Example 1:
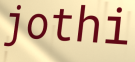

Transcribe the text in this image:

jothi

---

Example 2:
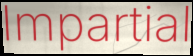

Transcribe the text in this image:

Impartial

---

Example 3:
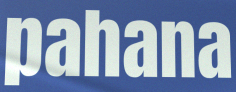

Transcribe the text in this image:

pahana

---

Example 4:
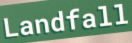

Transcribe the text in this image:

Landfall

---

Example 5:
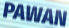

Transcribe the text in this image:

PAWAN